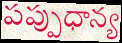
పప్పుధాన్య